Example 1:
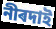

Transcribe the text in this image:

নীৰদাই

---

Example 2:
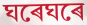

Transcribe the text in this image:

ঘৰেঘৰে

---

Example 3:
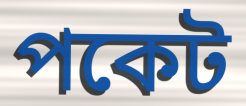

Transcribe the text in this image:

পকেট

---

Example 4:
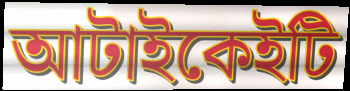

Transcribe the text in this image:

আটাইকেইটি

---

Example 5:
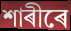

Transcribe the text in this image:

শাৰীৰে